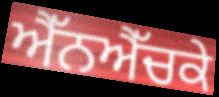
ਐੱਨਐੱਚਕੇ